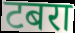
टबरा